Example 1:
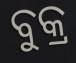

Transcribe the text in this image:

ବୁକ୍ର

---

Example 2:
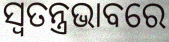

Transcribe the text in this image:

ସ୍ଵତନ୍ତ୍ରଭାବରେ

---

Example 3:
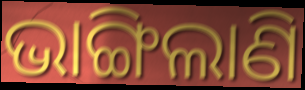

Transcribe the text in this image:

ଭାଙ୍ଗିଲାଣି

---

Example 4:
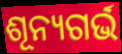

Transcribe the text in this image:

ଶୂନ୍ୟଗର୍ଭ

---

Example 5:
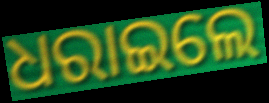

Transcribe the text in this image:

ଧରାଇଲେ